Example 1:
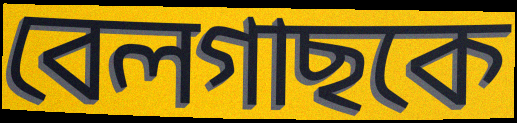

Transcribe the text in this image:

বেলগাছকে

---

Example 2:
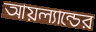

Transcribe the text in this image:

আয়ল্যান্ডের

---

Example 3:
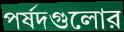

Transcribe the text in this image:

পর্ষদগুলোর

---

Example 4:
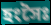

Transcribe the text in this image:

হংসৈঃ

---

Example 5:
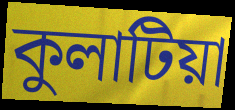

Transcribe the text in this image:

কুলাটিয়া